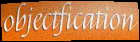
objectfication